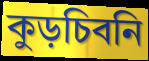
কুড়চিবনি